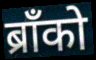
ब्राँको